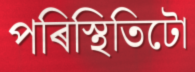
পৰিস্থিতিটো